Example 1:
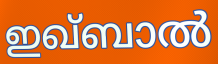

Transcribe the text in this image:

ഇഖ്ബാൽ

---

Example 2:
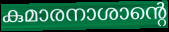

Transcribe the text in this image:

കുമാരനാശാന്റെ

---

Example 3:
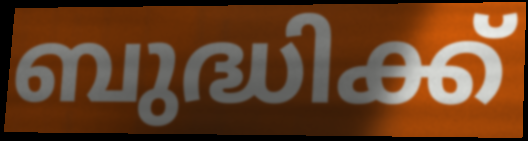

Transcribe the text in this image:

ബുദ്ധിക്ക്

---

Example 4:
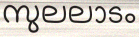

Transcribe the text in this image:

സുലലാടം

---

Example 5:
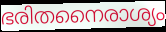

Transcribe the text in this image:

ഭരിതനൈരാശ്യം